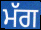
ਮੱਗ